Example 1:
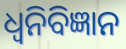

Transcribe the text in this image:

ଧ୍ୱନିବିଜ୍ଞାନ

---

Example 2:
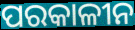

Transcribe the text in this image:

ପରକାଳୀନ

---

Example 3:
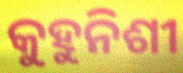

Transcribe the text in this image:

କୁହୁନିଶୀ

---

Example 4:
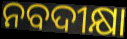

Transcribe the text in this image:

ନବଦୀକ୍ଷା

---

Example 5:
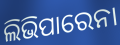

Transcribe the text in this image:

ଲିଭିପାରେନା